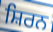
ਸ਼ਿਰਨ